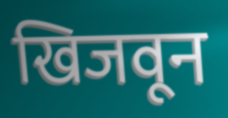
खिजवून